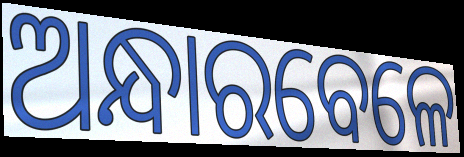
ଅନ୍ଧାରବେଳେ